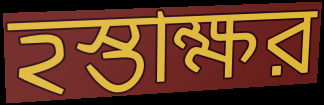
হস্তাক্ষর